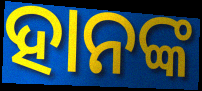
ହାନଙ୍କ